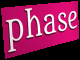
phase